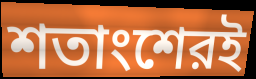
শতাংশেরই